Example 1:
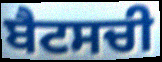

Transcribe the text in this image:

ਬੈਟਸਚੀ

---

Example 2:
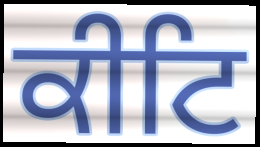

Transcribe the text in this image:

ਕੀਟਿ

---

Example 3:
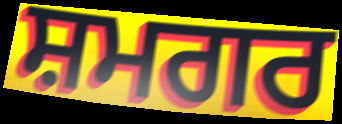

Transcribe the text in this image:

ਸ਼ਮਗਰ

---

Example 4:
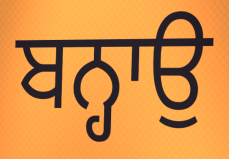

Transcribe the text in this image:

ਬਨ੍ਹਾਉ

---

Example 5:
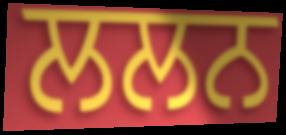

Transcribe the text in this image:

ਲਲਨ